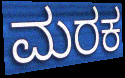
ಮರಕ